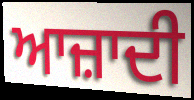
ਆਜ਼ਾਦੀ